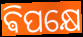
ଵିପକ୍ଷେ